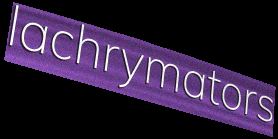
lachrymators